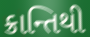
ક્રાન્તિથી